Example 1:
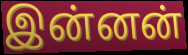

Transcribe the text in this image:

இன்னன்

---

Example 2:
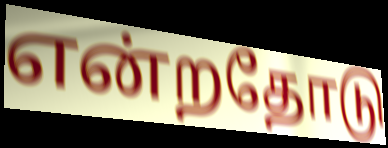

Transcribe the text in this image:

என்றதோடு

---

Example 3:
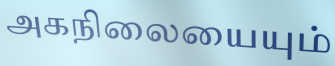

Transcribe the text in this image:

அகநிலையையும்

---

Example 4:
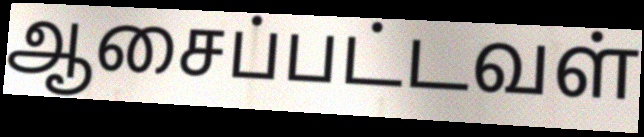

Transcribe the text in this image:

ஆசைப்பட்டவள்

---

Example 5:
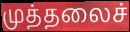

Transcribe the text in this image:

முத்தலைச்